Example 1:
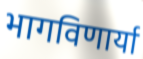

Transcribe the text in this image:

भागविणार्या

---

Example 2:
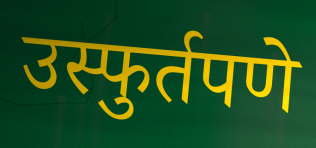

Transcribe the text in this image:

उस्फुर्तपणे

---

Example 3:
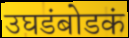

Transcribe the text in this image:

उघडंबोडकं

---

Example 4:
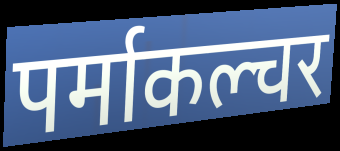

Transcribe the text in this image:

पर्माकल्चर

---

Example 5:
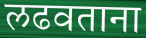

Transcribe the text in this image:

लढवताना